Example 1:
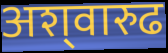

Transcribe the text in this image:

अश्वारुढ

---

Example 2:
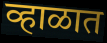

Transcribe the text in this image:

व्हाळात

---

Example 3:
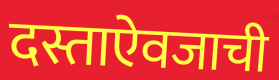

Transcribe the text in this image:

दस्ताऐवजाची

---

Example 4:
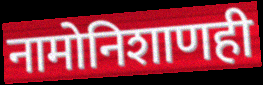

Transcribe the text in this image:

नामोनिशाणही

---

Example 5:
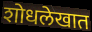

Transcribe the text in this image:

शोधलेखात